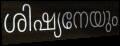
ശിഷ്യനേയും